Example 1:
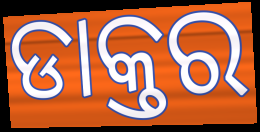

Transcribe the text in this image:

ଡାକ୍ତର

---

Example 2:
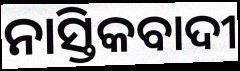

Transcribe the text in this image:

ନାସ୍ତିକବାଦୀ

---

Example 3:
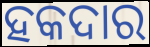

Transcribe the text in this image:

ହକଦାର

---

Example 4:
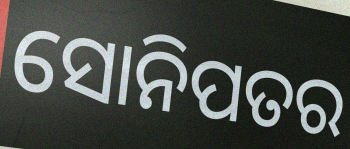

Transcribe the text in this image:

ସୋନିପତର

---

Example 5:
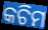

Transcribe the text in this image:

କଚିମ